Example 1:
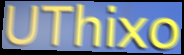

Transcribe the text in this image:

UThixo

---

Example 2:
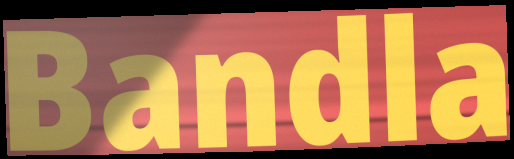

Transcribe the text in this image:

Bandla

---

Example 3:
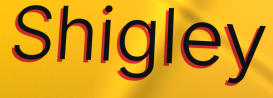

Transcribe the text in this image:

Shigley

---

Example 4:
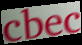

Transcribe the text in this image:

cbec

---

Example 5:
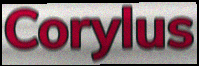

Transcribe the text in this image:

Corylus